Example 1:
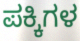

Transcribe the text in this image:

ಪಕ್ಕಿಗಳ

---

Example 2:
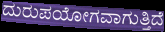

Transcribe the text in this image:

ದುರುಪಯೋಗವಾಗುತ್ತಿದೆ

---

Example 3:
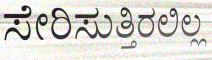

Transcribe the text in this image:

ಸೇರಿಸುತ್ತಿರಲಿಲ್ಲ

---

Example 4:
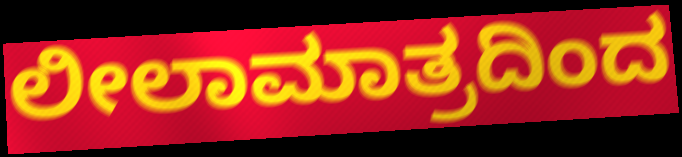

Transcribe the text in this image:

ಲೀಲಾಮಾತ್ರದಿಂದ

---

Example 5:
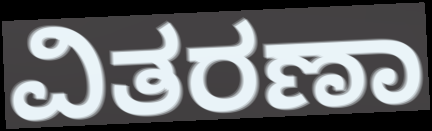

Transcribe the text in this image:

ವಿತರಣಾ